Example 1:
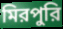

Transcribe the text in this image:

মিরপুরি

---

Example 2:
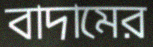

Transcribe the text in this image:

বাদামের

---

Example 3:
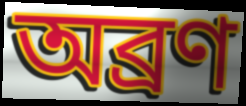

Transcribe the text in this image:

অব্রণ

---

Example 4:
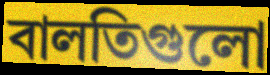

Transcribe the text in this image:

বালতিগুলো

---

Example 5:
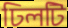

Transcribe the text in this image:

ঢিলটি